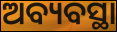
ଅବ୍ୟବସ୍ଥା